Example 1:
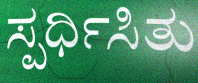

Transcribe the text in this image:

ಸ್ಪರ್ಧಿಸಿತು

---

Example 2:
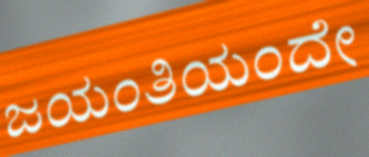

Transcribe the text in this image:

ಜಯಂತಿಯಂದೇ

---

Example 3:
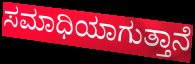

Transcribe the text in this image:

ಸಮಾಧಿಯಾಗುತ್ತಾನೆ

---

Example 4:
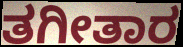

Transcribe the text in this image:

ತಗೀತಾರ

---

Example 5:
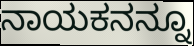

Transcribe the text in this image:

ನಾಯಕನನ್ನೂ